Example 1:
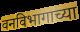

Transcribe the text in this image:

वनविभागाच्या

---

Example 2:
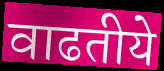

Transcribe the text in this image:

वाढतीये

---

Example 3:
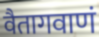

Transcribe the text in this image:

वैतागवाणं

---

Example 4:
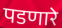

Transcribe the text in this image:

पडणारे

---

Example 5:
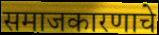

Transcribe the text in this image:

समाजकारणाचे